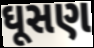
ઘૂસણ